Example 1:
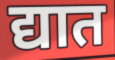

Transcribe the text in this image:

द्यात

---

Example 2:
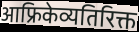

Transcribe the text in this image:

आफ्रिकेव्यतिरिक्त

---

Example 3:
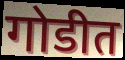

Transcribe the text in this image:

गोडीत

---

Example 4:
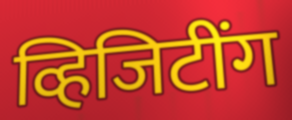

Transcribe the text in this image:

व्हिजिटींग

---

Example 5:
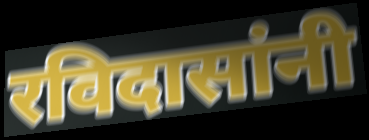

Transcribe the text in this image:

रविदासांनी